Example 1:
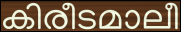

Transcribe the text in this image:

കിരീടമാലീ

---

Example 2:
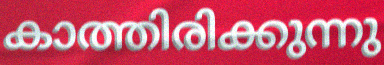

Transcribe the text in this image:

കാത്തിരിക്കുന്നു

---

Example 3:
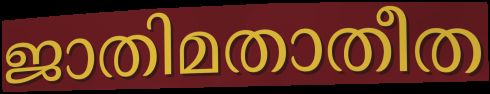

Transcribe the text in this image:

ജാതിമതാതീത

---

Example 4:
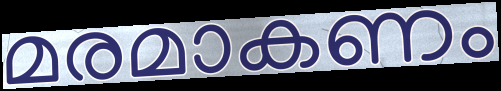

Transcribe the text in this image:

മരമാകണം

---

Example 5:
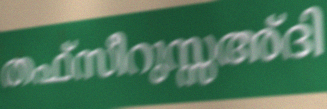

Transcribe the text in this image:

തഫ്സീറുസ്സഅ്ദി